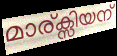
മാര്ക്സിയന്